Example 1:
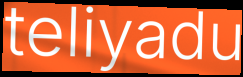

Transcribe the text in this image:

teliyadu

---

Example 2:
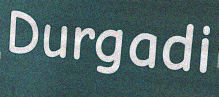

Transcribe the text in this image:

Durgadi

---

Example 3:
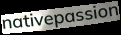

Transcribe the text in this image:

nativepassion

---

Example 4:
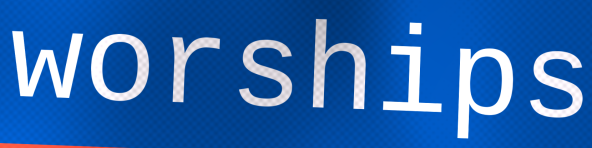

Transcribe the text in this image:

worships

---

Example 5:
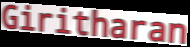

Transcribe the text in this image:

Giritharan